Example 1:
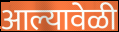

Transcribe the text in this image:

आल्यावेळी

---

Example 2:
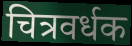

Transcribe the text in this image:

चित्रवर्धक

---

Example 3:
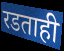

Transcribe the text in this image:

रडताही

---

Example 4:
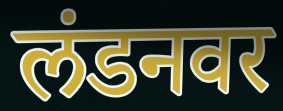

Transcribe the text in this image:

लंडनवर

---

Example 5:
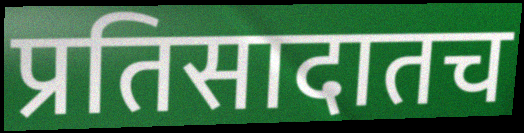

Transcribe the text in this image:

प्रतिसादातच